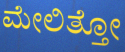
ಮೇಲಿತ್ತೋ